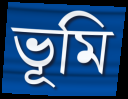
ভূমি